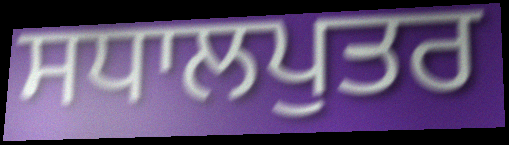
ਸਧਾਲਪੁਤਰ